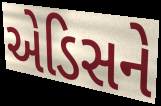
એડિસને